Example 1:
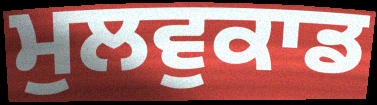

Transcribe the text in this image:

ਮੁਲਵੁਕਾਡ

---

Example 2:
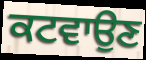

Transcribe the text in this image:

ਕਟਵਾਉਣ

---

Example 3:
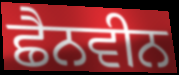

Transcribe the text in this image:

ਛੈਨਵੀਨ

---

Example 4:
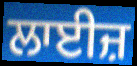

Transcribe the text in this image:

ਲਾਈਜ਼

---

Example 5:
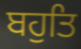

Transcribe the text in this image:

ਬਹੁਤਿ